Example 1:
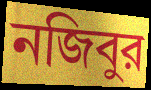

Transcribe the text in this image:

নজিবুর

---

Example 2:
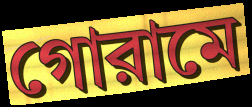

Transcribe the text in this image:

গোরামে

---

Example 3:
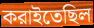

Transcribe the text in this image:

করাইতেছিল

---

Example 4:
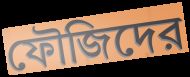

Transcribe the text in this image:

ফৌজিদের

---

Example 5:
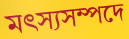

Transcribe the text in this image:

মৎস্যসম্পদে